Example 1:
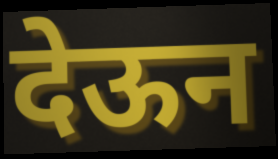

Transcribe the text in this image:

देऊन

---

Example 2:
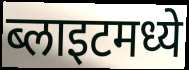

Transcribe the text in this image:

ब्लाइटमध्ये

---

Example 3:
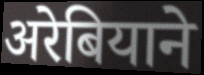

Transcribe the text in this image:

अरेबियाने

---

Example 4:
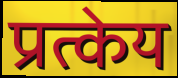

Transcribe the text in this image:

प्रत्केय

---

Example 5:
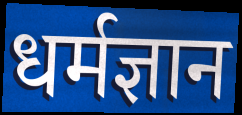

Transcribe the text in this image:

धर्मज्ञान